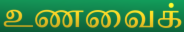
உணவைக்